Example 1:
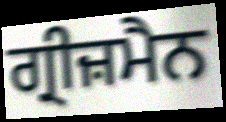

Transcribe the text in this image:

ਗ੍ਰੀਜ਼ਮੈਨ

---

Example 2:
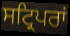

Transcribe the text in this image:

ਸਟ੍ਰਿਪਰਾਂ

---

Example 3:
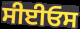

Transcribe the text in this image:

ਸੀਈਓਸ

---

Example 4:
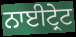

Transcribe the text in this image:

ਨਾਈਟ੍ਰੇਟ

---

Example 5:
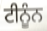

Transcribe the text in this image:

ਟੀਨੂੰਨ